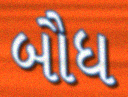
બૌધ